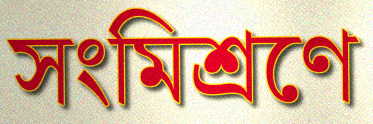
সংমিশ্ৰণে